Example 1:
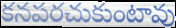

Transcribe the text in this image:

కనపరచుకుంటావు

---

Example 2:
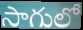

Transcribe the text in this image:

సాగులో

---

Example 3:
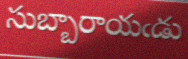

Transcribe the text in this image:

సుబ్బారాయఁడు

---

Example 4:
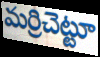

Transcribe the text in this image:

మర్రిచెట్టూ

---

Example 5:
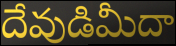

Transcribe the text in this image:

దేవుడిమీదా